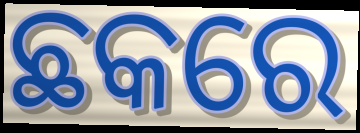
ଛକରେ